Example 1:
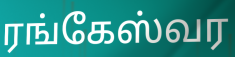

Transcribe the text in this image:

ரங்கேஸ்வர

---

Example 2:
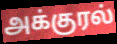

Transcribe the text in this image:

அக்குரல்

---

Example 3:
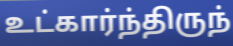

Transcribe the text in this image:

உட்கார்ந்திருந்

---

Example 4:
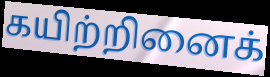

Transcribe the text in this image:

கயிற்றினைக்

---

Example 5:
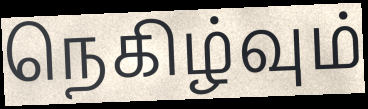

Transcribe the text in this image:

நெகிழ்வும்